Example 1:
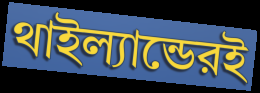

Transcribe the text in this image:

থাইল্যান্ডেরই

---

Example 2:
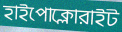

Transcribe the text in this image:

হাইপোক্লোরাইট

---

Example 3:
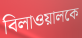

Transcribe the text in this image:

বিলাওয়ালকে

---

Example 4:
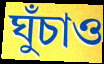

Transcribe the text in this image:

ঘুঁচাও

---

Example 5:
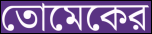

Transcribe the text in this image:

তোমেকের